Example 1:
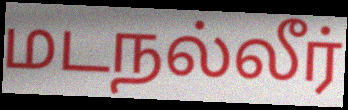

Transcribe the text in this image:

மடநல்லீர்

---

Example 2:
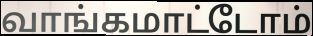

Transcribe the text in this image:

வாங்கமாட்டோம்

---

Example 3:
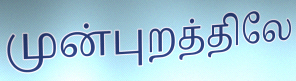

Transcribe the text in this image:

முன்புறத்திலே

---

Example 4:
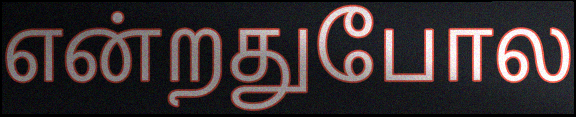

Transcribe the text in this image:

என்றதுபோல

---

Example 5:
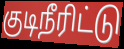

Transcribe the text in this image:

குடிநீரிட்டு